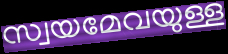
സ്വയമേവയുള്ള